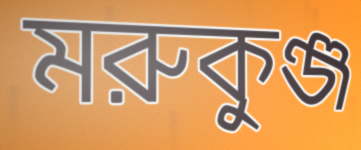
মরুকুঞ্জ